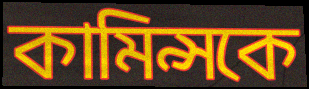
কামিন্সকে